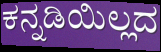
ಕನ್ನಡಿಯಿಲ್ಲದ